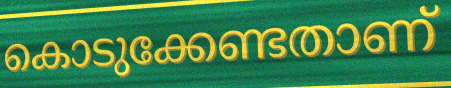
കൊടുക്കേണ്ടതാണ്